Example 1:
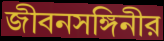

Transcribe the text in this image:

জীবনসঙ্গিনীর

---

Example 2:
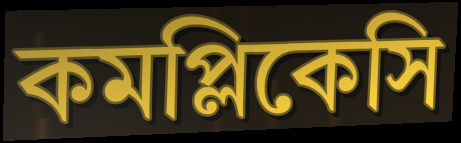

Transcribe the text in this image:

কমপ্লিকেসি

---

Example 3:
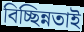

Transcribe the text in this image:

বিচ্ছিন্নতাই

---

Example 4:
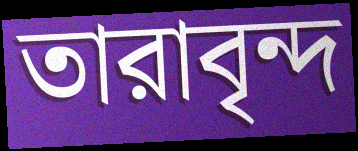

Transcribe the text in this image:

তারাবৃন্দ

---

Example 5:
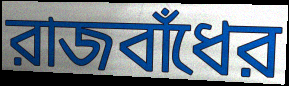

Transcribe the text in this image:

রাজবাঁধের